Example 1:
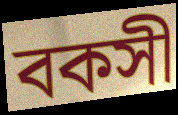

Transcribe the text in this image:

বকসী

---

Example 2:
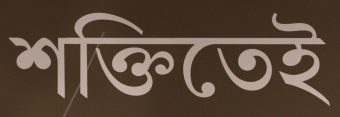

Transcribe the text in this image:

শক্তিতেই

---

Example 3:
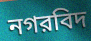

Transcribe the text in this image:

নগরবিদ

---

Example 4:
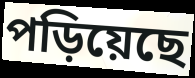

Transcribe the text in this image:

পড়িয়েছে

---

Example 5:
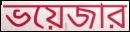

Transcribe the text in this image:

ভয়েজার